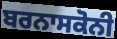
ਬਰਨਾਸਕੋਨੀ